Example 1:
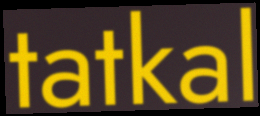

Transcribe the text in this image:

tatkal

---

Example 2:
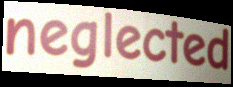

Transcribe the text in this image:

neglected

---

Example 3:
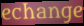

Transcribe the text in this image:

echange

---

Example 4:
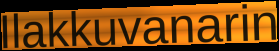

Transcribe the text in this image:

Ilakkuvanarin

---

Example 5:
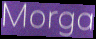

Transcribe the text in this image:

Morga